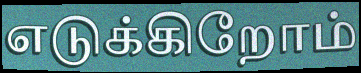
எடுக்கிறோம்